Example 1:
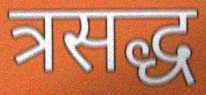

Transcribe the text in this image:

त्रसद्ध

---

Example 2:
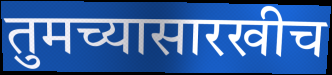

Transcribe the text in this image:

तुमच्यासारखीच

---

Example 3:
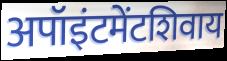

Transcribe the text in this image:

अपॉइंटमेंटशिवाय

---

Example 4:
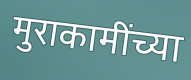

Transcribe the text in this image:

मुराकामींच्या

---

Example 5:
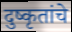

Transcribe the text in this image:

दुष्कृतांचे